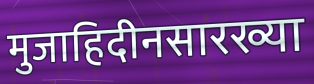
मुजाहिदीनसारख्या